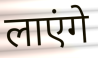
लाएंगे